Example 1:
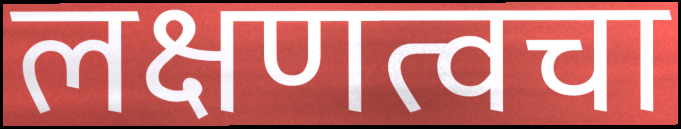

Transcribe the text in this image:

लक्षणत्वचा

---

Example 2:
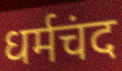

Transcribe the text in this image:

धर्मचंद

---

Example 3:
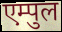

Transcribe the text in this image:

एम्पुल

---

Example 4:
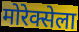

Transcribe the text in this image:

मोरेक्सेला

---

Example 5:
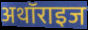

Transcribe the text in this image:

अथॉराइज